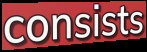
consists